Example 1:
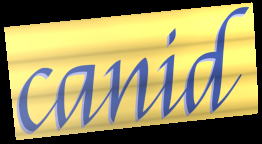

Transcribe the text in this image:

canid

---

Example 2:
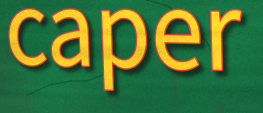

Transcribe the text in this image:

caper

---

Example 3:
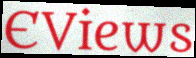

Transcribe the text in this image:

EViews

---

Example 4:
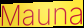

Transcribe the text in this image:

Mauna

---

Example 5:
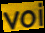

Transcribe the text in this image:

voi